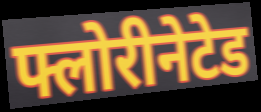
फ्लोरीनेटेड